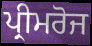
ਪ੍ਰੀਮਰੋਜ